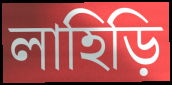
লাহিড়ি